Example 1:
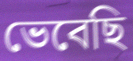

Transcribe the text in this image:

ভেবেছি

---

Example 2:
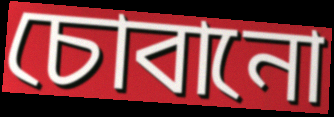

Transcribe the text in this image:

চোবানো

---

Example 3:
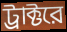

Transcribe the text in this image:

ট্রাক্টরে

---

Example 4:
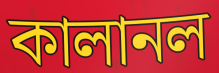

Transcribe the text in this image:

কালানল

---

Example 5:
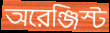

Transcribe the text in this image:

অরেঞ্জিস্ট